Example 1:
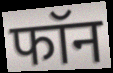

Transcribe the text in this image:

फॉन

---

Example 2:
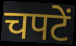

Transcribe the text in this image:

चपटें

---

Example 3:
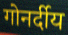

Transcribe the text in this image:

गोनर्दीय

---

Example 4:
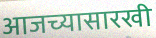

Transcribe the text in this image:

आजच्यासारखी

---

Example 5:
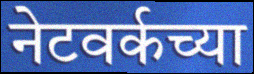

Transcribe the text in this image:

नेटवर्कच्या